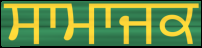
ਸਾਮਾਜਕ